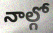
నాల్గో